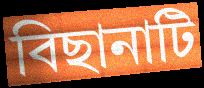
বিছানাটি